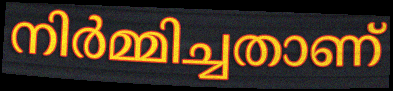
നിർമ്മിച്ചതാണ്